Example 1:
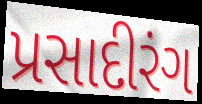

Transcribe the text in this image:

પ્રસાદીરંગ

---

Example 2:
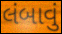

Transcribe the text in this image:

લંબાવું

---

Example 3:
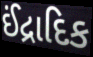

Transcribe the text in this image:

ઈંદ્રાદિક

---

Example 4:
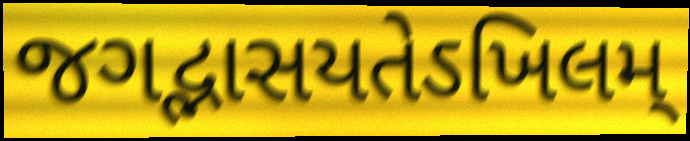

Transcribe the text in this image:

જગદ્ભાસયતેઽખિલમ્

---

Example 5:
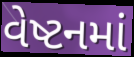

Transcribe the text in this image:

વેષ્ટનમાં